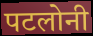
पटलोनी